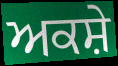
ਅਕਸ਼ੇ